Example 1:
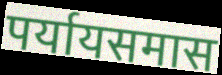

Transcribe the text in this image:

पर्यायसमास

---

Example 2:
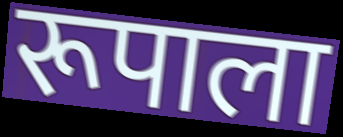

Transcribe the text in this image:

रूपाला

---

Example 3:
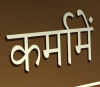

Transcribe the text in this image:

कर्मामें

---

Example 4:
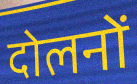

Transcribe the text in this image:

दोलनों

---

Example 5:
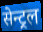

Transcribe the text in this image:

सेन्ट्रल